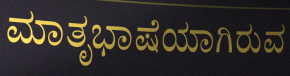
ಮಾತೃಭಾಷೆಯಾಗಿರುವ